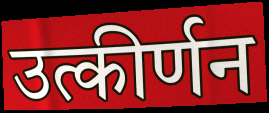
उत्कीर्णन